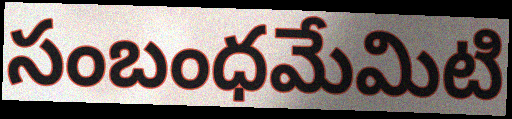
సంబంధమేమిటి